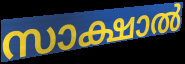
സാക്ഷാൽ